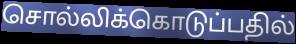
சொல்லிக்கொடுப்பதில்